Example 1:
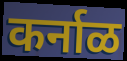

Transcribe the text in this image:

कर्नाळ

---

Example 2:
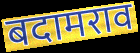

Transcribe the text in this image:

बदामराव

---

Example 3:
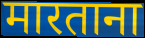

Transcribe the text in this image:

मारताना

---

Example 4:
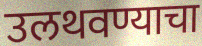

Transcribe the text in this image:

उलथवण्याचा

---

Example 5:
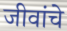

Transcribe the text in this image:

जीवांचे